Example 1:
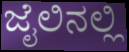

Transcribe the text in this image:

ಜೈಲಿನಲ್ಲಿ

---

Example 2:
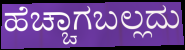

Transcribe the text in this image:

ಹೆಚ್ಚಾಗಬಲ್ಲದು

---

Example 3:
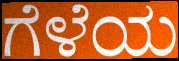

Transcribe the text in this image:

ಗೆಳೆಯ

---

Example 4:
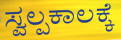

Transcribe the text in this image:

ಸ್ವಲ್ಪಕಾಲಕ್ಕೆ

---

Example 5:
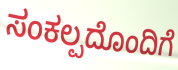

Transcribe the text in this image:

ಸಂಕಲ್ಪದೊಂದಿಗೆ